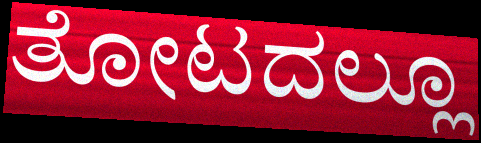
ತೋಟದಲ್ಲೂ